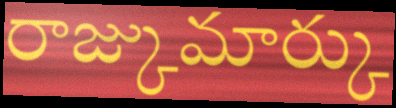
రాజ్కుమార్కు